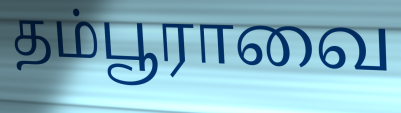
தம்பூராவை